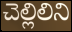
చెల్లిలిని